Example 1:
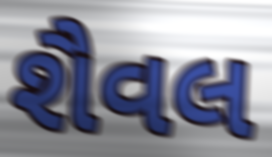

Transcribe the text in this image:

શૈવલ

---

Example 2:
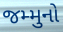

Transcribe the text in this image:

જમ્મુનો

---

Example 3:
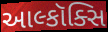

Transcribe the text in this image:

આલ્કૉક્સિ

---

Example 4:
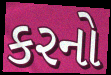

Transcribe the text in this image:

કરનો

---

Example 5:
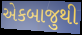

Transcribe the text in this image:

એકબાજુથી